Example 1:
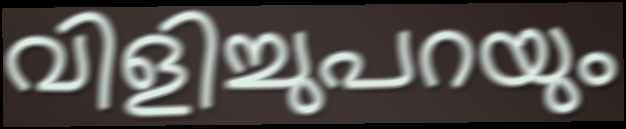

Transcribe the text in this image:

വിളിച്ചുപറയും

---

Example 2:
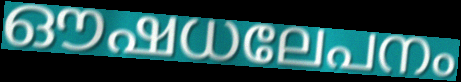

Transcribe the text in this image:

ഔഷധലേപനം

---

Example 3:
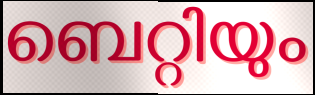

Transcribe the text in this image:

ബെറ്റിയും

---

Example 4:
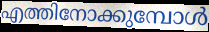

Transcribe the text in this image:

എത്തിനോക്കുമ്പോൾ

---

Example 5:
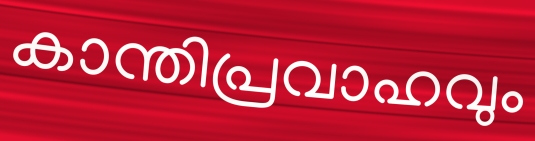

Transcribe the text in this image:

കാന്തിപ്രവാഹവും